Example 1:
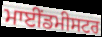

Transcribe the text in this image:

ਮਾਈਂਡਮੀਸਟਰ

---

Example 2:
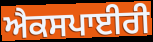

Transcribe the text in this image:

ਐਕਸਪਾਈਰੀ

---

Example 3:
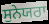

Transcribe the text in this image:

ਸੁਨੇਯਰਾ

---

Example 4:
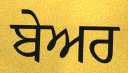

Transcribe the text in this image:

ਬੇਅਰ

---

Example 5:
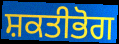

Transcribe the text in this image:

ਸ਼ਕਤੀਭੋਗ